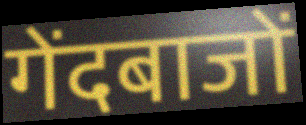
गेंदबाजों